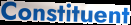
Constituent